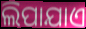
ଲିପାଯାଏ